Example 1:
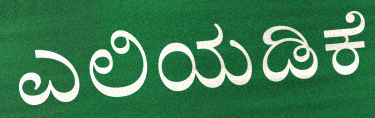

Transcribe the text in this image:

ಎಲಿಯಡಿಕೆ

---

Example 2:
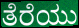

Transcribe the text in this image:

ತೆರೆಯು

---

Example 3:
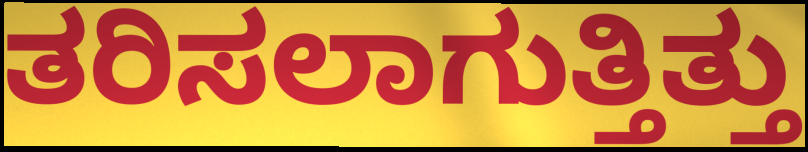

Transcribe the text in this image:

ತರಿಸಲಾಗುತ್ತಿತ್ತು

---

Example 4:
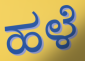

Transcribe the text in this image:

ಹಳೆ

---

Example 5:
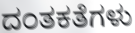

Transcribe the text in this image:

ದಂತಕತೆಗಳು